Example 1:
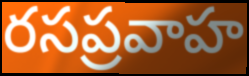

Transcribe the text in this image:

రసప్రవాహ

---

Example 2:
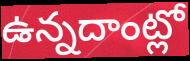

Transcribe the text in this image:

ఉన్నదాంట్లో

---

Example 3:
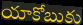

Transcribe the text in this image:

యాకోబుకు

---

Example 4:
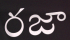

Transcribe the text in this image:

రజా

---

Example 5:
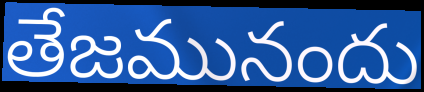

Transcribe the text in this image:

తేజమునందు